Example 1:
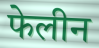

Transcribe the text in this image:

फेलीन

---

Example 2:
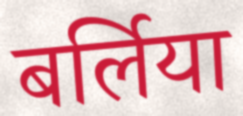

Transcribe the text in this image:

बर्लिया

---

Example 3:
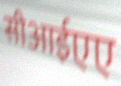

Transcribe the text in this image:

सीआईएए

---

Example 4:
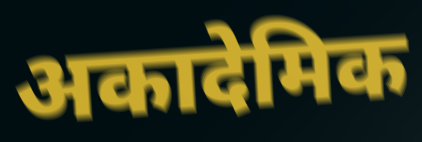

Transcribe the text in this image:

अकादेमिक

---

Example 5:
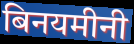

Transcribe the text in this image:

बिनयमीनी